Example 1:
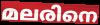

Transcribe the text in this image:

മലരിനെ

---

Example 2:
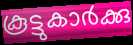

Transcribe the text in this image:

കൂട്ടുകാർക്കു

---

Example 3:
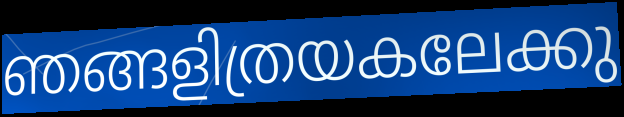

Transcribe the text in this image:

ഞങ്ങളിത്രയകലേക്കു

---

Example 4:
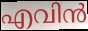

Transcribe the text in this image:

എവിൻ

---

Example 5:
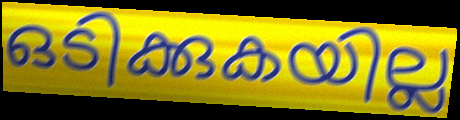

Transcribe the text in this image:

ഒടിക്കുകയില്ല